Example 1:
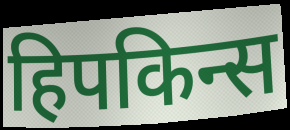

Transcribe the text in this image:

हिपकिन्स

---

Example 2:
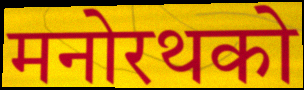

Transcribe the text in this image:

मनोरथको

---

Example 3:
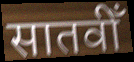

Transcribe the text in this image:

सातवीँ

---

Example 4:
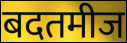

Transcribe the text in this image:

बदतमीज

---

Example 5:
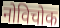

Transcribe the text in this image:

नोविचोक